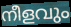
നീളവും